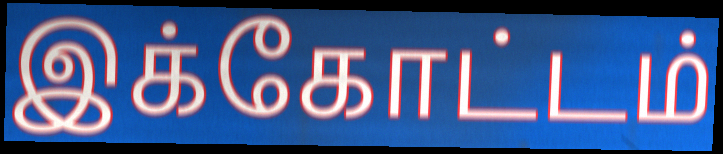
இக்கோட்டம்